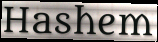
Hashem